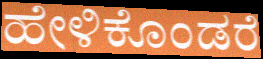
ಹೇಳಿಕೊಂಡರೆ